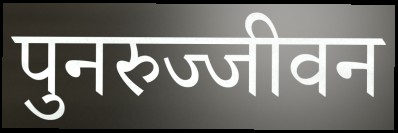
पुनरुज्जीवन